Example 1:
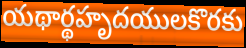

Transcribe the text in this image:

యథార్థహృదయులకొరకు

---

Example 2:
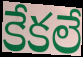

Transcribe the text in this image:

కేకలే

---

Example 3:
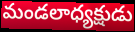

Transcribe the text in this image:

మండలాధ్యక్షుడు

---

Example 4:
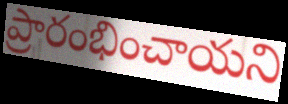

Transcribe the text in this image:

ప్రారంభించాయని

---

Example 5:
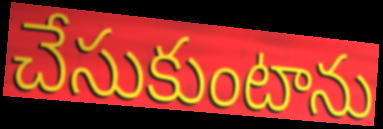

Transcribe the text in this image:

చేసుకుంటాను